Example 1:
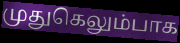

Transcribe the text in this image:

முதுகெலும்பாக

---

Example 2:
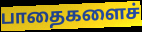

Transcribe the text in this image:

பாதைகளைச்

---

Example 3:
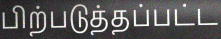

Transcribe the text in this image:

பிற்படுத்தப்பட்ட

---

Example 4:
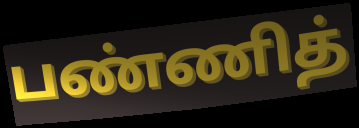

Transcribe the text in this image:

பண்ணித்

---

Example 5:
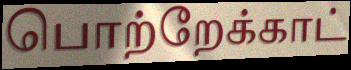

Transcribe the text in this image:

பொற்றேக்காட்